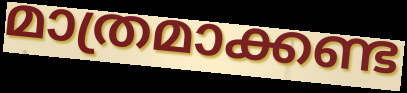
മാത്രമാക്കണ്ട